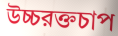
উচ্চরক্তচাপ